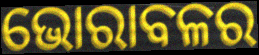
ଭୋରାବଳର